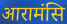
आरामंसि